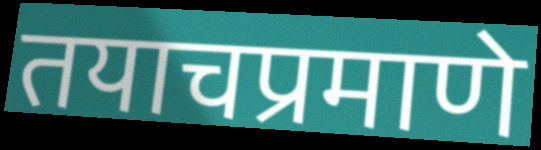
तयाचप्रमाणे